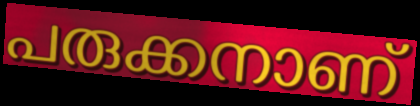
പരുക്കനാണ്